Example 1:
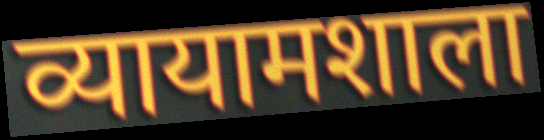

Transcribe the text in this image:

व्यायामशाला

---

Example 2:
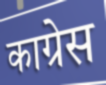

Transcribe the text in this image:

काग्रेस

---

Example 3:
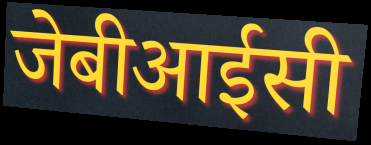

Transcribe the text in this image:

जेबीआईसी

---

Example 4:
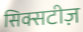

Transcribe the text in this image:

सिक्सटीज़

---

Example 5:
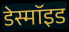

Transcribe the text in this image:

डेस्मॉइड